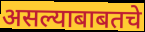
असल्याबाबतचे